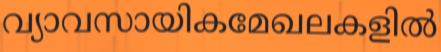
വ്യാവസായികമേഖലകളിൽ